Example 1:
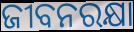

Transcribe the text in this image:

ଜୀବନରକ୍ଷା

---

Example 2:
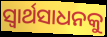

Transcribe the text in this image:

ସ୍ଵାର୍ଥସାଧନକୁ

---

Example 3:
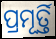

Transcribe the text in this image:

ପ୍ରମୂର୍ତ୍ତି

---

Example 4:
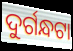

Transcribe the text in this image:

ଦୁର୍ଗନ୍ଧଟା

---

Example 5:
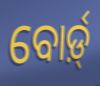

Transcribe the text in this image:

ବୋର୍ଡ଼୍